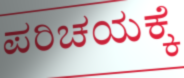
ಪರಿಚಯಕ್ಕೆ